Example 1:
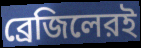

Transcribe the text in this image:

ব্রেজিলেরই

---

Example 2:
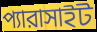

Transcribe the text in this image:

প্যারাসাইট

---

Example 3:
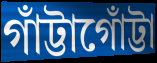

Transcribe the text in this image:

গাঁট্টাগোঁট্টা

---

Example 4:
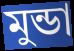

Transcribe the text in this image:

মুন্ডা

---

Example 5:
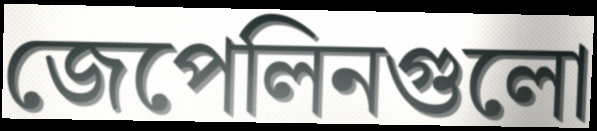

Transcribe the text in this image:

জেপেলিনগুলো